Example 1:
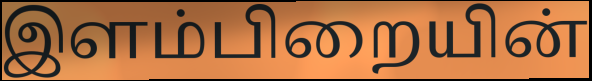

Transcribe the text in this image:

இளம்பிறையின்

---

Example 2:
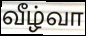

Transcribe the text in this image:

வீழ்வா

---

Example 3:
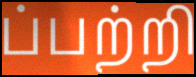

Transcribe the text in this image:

ப்பற்றி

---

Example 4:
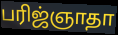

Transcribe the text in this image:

பரிஜ்ஞாதா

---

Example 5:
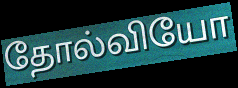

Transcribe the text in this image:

தோல்வியோ